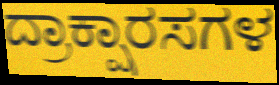
ದ್ರಾಕ್ಷಾರಸಗಳ